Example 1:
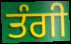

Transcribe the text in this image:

ਤੰਗੀ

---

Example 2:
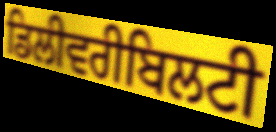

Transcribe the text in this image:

ਡਿਲੀਵਰੀਬਿਲਟੀ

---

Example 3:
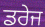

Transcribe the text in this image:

ਡਰੇਜ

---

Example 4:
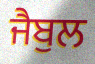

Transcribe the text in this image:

ਜੈਬੁਲ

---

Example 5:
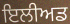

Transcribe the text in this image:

ਇਲੀਅਡ